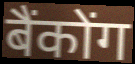
बैंकोंग